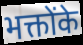
भक्तोंके